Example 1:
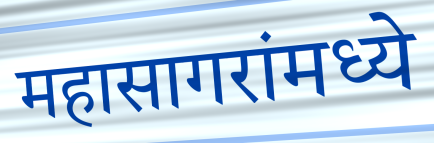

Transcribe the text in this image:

महासागरांमध्ये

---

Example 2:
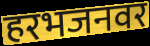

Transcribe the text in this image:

हरभजनवर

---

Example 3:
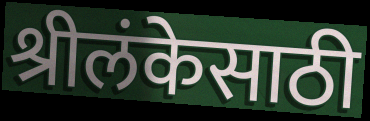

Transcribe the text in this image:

श्रीलंकेसाठी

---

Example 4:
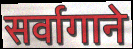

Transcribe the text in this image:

सर्वागाने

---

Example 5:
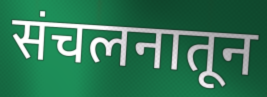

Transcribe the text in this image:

संचलनातून